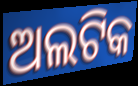
ଅଲଟିକ